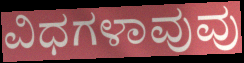
ವಿಧಗಳಾವುವು